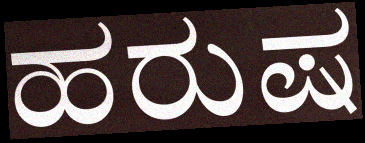
ಹರುಷ